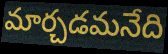
మార్చడమనేది